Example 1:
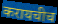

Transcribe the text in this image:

करायचीच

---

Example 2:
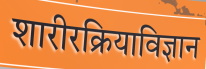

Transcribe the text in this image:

शारीरक्रियाविज्ञान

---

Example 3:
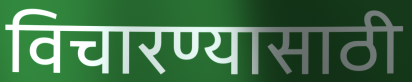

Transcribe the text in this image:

विचारण्यासाठी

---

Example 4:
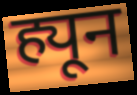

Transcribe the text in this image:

ह्यून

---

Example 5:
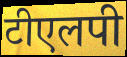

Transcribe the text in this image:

टीएलपी